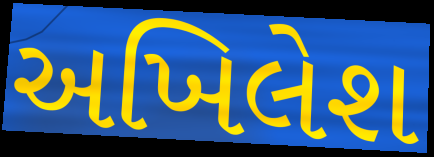
અખિલેશ